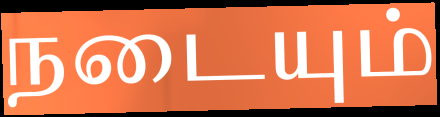
நடையும்